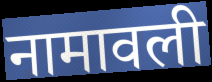
नामावली